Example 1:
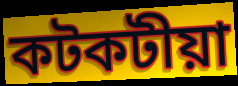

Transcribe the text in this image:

কটকটীয়া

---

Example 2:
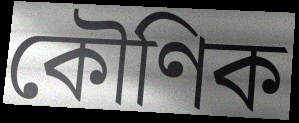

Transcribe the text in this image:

কৌণিক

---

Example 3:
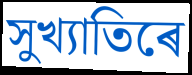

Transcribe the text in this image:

সুখ্যাতিৰে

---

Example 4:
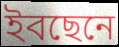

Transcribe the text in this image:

ইবছেনে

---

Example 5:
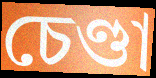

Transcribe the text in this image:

চেণ্ডা